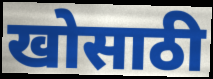
खोसाठी